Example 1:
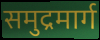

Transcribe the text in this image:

समुद्रमार्ग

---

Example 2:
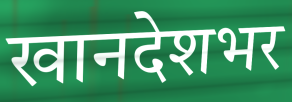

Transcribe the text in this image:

खानदेशभर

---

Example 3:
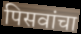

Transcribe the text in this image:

पिसवांचा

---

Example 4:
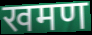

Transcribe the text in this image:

खमण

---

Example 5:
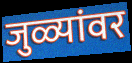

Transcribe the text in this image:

जुळ्यांवर